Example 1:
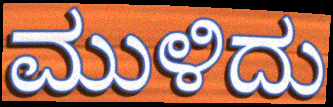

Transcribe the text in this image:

ಮುಳಿದು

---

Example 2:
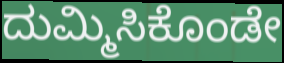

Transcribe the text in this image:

ದುಮ್ಮಿಸಿಕೊಂಡೇ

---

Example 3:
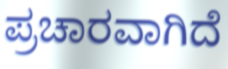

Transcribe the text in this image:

ಪ್ರಚಾರವಾಗಿದೆ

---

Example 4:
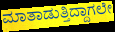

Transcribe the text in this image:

ಮಾತಾಡುತ್ತಿದ್ದಾಗಲೇ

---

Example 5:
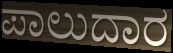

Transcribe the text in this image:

ಪಾಲುದಾರ